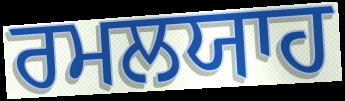
ਰਮਲਯਾਹ